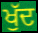
ਖੁੱਦ